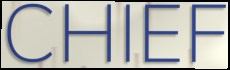
CHIEF